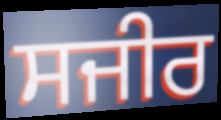
ਸਜੀਰ